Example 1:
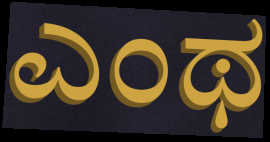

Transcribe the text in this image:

ಎಂಥ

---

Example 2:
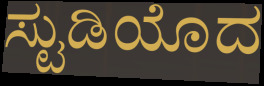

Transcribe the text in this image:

ಸ್ಟುಡಿಯೊದ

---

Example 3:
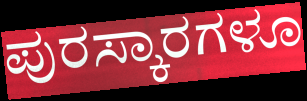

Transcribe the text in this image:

ಪುರಸ್ಕಾರಗಳೂ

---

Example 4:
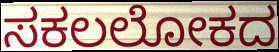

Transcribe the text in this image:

ಸಕಲಲೋಕದ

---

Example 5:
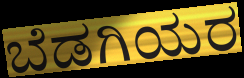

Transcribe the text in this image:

ಬೆಡಗಿಯರ